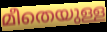
മീതെയുള്ള